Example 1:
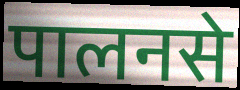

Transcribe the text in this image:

पालनसे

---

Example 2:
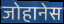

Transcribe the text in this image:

जोहानेस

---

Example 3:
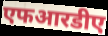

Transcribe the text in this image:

एफआरडीए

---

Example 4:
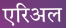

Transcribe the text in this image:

एरिअल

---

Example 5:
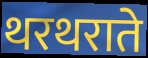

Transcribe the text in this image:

थरथराते